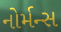
નોર્મન્સ